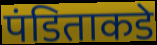
पंडिताकडे